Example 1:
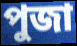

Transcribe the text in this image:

পুজা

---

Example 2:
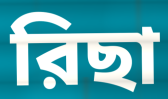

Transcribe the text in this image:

রিছা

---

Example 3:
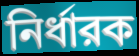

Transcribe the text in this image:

নির্ধারক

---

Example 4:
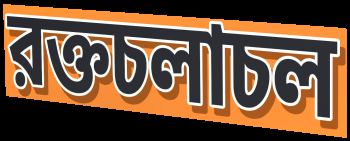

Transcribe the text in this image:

রক্তচলাচল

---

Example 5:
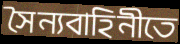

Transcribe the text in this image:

সৈন্যবাহিনীতে